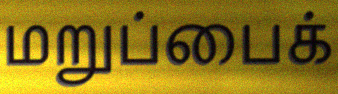
மறுப்பைக்